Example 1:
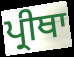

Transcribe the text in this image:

ਪ੍ਰੀਥਾ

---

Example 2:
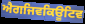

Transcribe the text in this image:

ਐਗਜਿਵਕਿਊਟਿਵ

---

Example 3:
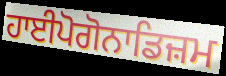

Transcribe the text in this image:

ਹਾਈਪੋਗੋਨਾਡਿਜ਼ਮ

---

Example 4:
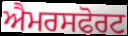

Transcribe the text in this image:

ਐਮਰਸਫੋਰਟ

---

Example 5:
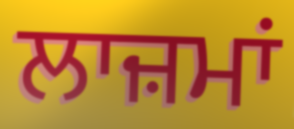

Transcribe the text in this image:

ਲਾਜ਼ਮਾਂ